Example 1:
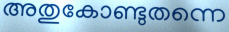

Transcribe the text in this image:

അതുകോണ്ടുതന്നെ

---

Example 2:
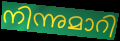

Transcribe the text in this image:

നിന്നുമാറി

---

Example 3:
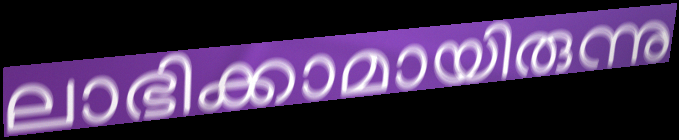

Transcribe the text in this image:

ലാഭിക്കാമായിരുന്നു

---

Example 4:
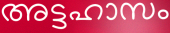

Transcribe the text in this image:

അട്ടഹാസം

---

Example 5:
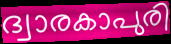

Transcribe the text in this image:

ദ്വാരകാപുരി